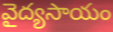
వైద్యసాయం